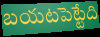
బయటపెట్టేది